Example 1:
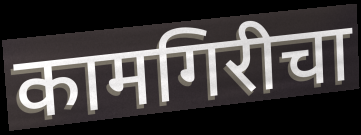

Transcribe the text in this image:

कामगिरीचा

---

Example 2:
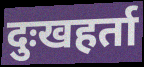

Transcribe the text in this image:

दुःखहर्ता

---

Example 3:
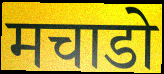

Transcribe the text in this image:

मचाडो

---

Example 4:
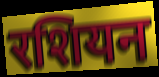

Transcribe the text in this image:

रशियन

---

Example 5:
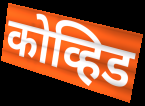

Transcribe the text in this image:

कोव्हिड